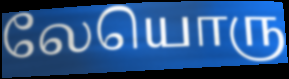
லேயொரு